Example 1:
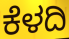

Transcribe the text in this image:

ಕೆಳದಿ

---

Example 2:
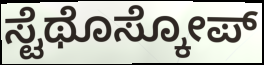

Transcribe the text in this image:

ಸ್ಟೆಥೊಸ್ಕೋಪ್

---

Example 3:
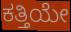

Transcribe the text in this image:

ಕತ್ತಿಯೇ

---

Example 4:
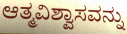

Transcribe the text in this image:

ಆತ್ಮವಿಶ್ವಾಸವನ್ನು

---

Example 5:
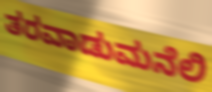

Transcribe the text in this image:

ತರವಾಡುಮನೆಲಿ